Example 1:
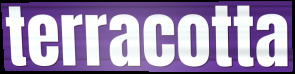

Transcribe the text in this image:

terracotta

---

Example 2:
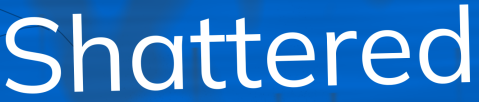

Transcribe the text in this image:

Shattered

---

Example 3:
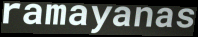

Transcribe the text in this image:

ramayanas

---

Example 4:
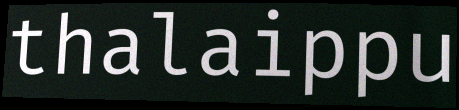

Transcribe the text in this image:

thalaippu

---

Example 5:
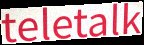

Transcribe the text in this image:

teletalk